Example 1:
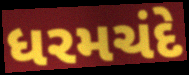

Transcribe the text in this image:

ધરમચંદે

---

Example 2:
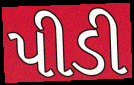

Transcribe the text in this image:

પીડી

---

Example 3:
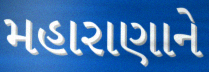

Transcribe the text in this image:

મહારાણાને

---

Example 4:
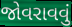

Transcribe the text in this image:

જોવરાવવું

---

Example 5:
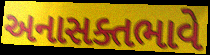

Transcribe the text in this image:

અનાસક્તભાવે